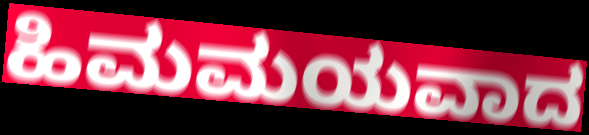
ಹಿಮಮಯವಾದ